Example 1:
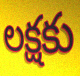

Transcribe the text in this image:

లక్షకు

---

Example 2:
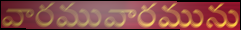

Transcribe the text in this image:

వారమువారమును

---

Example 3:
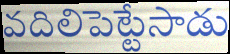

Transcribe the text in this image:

వదిలిపెట్టేసాడు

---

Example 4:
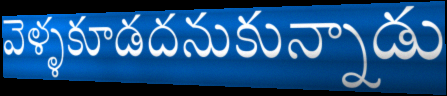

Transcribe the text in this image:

వెళ్ళకూడదనుకున్నాడు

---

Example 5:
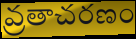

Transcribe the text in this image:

వ్రతాచరణం